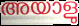
അയാളു